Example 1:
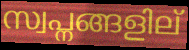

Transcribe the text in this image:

സ്വപ്നങ്ങളില്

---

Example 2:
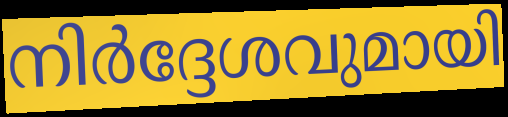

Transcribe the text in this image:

നിർദ്ദേശവുമായി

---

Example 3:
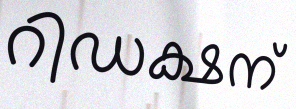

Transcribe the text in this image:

റിഡക്ഷന്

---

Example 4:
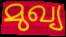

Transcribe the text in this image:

മുഖ്യ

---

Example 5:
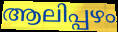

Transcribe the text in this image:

ആലിപ്പഴം